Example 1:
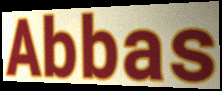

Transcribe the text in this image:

Abbas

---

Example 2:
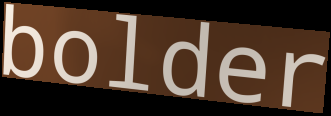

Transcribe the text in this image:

bolder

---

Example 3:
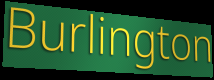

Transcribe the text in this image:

Burlington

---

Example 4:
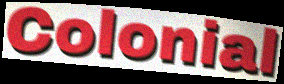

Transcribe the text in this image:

Colonial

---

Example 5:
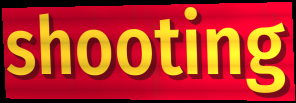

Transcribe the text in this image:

shooting